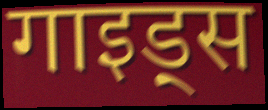
गाइड्स